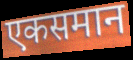
एकसमान